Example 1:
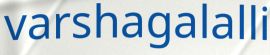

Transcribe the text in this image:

varshagalalli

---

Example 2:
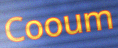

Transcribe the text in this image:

Cooum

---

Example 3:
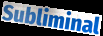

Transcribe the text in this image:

Subliminal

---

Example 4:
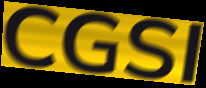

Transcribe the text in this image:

CGSI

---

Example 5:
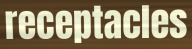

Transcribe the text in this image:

receptacles